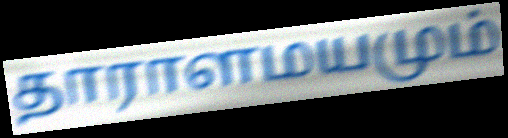
தாராளமயமும்